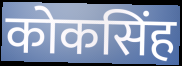
कोकसिंह